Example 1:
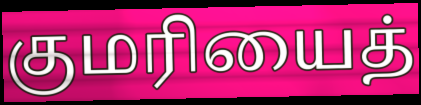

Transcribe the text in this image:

குமரியைத்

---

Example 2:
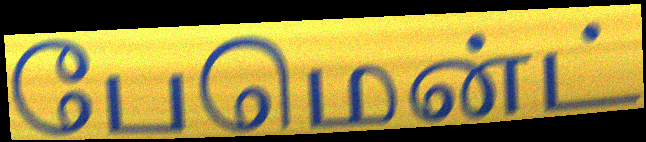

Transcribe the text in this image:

பேமென்ட்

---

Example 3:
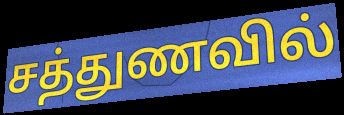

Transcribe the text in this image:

சத்துணவில்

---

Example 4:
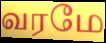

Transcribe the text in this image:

வரமே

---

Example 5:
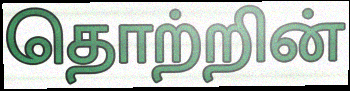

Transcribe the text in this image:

தொற்றின்